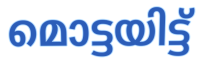
മൊട്ടയിട്ട്